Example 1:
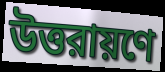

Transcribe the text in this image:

উত্তরায়ণে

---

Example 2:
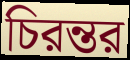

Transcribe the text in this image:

চিরন্তর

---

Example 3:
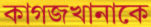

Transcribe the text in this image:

কাগজখানাকে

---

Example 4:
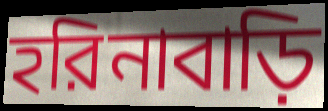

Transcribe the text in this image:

হরিনাবাড়ি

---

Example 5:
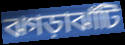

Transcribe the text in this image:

ঝগড়াঝাঁটি